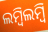
ଲମ୍ବିଲମ୍ବି